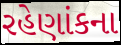
રહેણાંકના